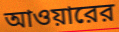
আওয়ারের